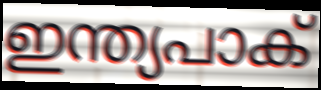
ഇന്ത്യപാക്